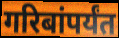
गरिबांपर्यंत